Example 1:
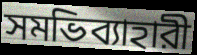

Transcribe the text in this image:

সমভিব্যাহারী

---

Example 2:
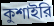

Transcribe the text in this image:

কুশাইরি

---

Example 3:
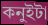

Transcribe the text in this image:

কনুইটা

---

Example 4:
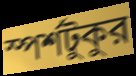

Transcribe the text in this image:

স্পর্শটুকুর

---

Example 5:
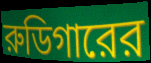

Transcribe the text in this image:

রুডিগারের